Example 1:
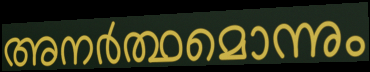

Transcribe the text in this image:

അനർത്ഥമൊന്നും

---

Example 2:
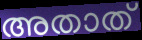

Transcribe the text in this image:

അതാത്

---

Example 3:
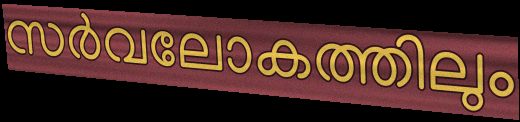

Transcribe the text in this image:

സർവലോകത്തിലും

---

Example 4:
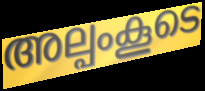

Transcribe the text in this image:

അല്പംകൂടെ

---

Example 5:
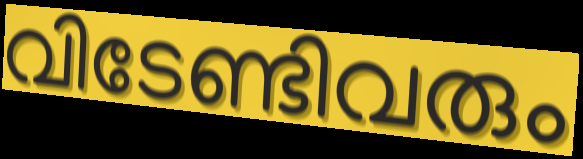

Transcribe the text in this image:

വിടേണ്ടിവരും